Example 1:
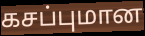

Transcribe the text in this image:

கசப்புமான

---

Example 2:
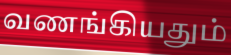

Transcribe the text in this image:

வணங்கியதும்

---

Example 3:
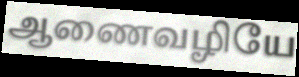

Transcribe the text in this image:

ஆணைவழியே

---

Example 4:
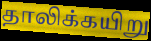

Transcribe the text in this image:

தாலிக்கயிறு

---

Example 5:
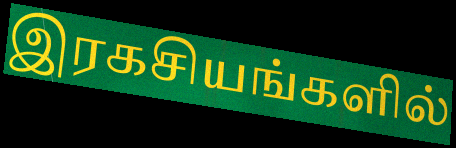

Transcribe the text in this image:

இரகசியங்களில்